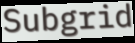
Subgrid